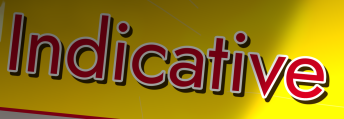
Indicative